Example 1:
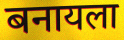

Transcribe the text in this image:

बनायला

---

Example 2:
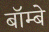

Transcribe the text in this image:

बॉम्बे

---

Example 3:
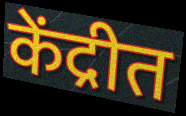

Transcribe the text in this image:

केंद्रीत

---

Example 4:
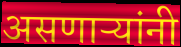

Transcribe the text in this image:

असणाऱ्यांनी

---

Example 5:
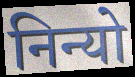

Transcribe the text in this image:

निन्यो